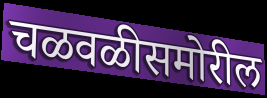
चळवळीसमोरील